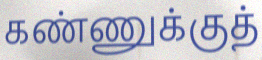
கண்ணுக்குத்